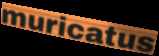
muricatus